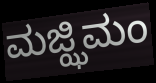
ಮಜ್ಝಿಮಂ